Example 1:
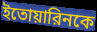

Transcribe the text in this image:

ইতোয়ারিনকে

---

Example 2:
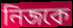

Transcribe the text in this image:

নিজকে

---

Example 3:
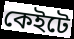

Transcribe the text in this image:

কেইটে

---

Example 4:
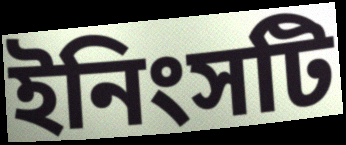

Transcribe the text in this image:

ইনিংসটি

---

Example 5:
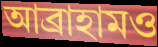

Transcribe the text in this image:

আব্রাহামও